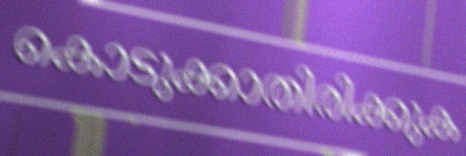
കൊടുക്കാതിരിക്കുക